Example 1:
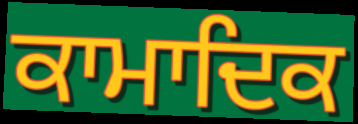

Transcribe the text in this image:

ਕਾਮਾਦਿਕ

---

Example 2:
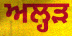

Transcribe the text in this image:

ਅਲ੍ਹੜ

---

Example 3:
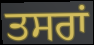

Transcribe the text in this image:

ਤਸਰਾਂ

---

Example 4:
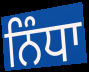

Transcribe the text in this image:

ਨਿੰਧਾ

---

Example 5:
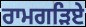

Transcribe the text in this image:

ਰਾਮਗੜਿਏ